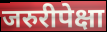
जरुरीपेक्षा